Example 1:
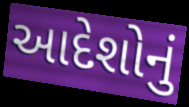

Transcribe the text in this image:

આદેશોનું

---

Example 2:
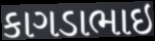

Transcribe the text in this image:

કાગડાભાઇ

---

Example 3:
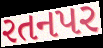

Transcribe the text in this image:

રતનપર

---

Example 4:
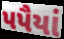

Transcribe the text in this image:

પપૈયાં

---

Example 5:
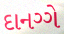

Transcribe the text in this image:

દાનગ્ગે